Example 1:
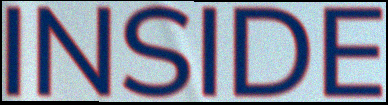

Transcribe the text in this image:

INSIDE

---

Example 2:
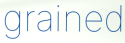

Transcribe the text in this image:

grained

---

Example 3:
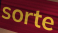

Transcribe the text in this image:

sorte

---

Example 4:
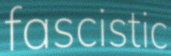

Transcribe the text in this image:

fascistic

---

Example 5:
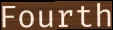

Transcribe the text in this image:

Fourth